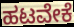
ಹಟವೇಕೆ